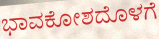
ಭಾವಕೋಶದೊಳಗೆ